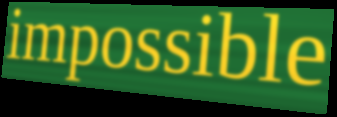
impossible